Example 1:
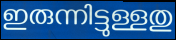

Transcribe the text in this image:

ഇരുന്നിട്ടുള്ളതു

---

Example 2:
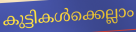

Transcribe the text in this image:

കുട്ടികൾക്കെല്ലാം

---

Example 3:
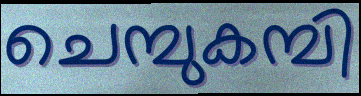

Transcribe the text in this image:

ചെമ്പുകമ്പി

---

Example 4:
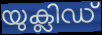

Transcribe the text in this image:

യുക്ലിഡ്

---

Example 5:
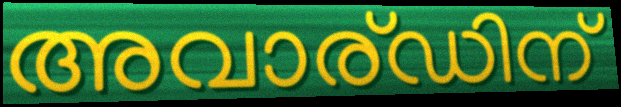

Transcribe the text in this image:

അവാര്ഡിന്